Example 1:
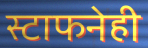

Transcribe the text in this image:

स्टाफनेही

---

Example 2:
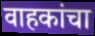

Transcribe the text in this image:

वाहकांचा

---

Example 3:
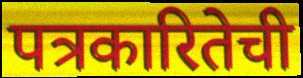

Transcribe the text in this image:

पत्रकारितेची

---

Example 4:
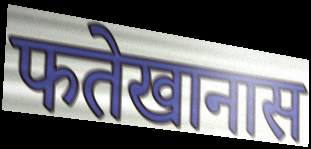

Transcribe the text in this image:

फतेखानास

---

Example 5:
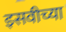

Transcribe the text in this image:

इसवीच्या